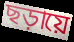
ছড়ায়ে